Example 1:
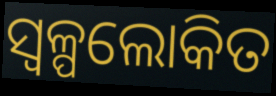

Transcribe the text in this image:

ସ୍ୱଳ୍ପଲୋକିତ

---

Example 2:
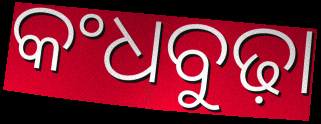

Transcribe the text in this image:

କଂଧବୁଢ଼ା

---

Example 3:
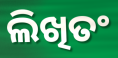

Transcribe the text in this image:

ଲିଖିତଂ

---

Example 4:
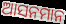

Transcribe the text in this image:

ଆସନମାନ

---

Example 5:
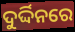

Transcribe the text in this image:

ଦୁର୍ଦ୍ଦିନରେ